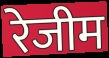
रेजीम